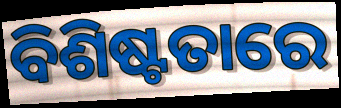
ବିଶିଷ୍ଟତାରେ